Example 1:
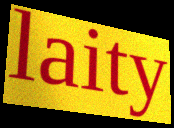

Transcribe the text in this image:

laity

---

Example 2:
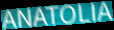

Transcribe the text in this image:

ANATOLIA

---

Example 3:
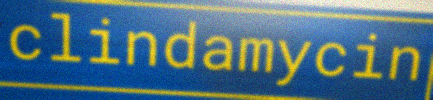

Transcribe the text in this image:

clindamycin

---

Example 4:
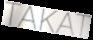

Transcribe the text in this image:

TAKAT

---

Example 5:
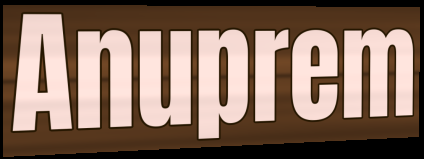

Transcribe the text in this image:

Anuprem